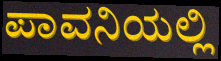
ಪಾವನಿಯಲ್ಲಿ